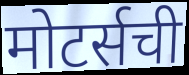
मोटर्सची